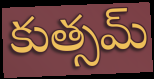
కుత్సమ్